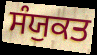
ਸੰਯੁਕਤ